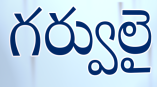
గర్వులై